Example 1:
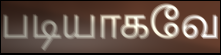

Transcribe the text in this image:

படியாகவே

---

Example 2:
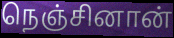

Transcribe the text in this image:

நெஞ்சினான்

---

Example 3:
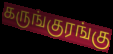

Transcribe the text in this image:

கருங்குரங்கு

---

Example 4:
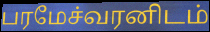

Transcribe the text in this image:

பரமேச்வரனிடம்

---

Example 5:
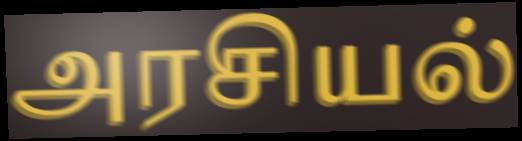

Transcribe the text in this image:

அரசியல்